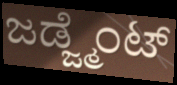
ಜಡ್ಜ್ಮೆಂಟ್